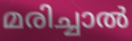
മരിച്ചാൽ